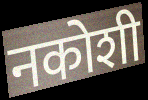
नकोशी